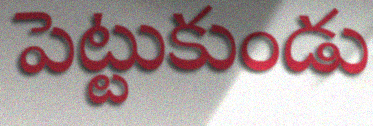
పెట్టుకుండు